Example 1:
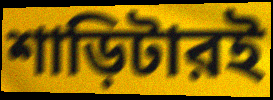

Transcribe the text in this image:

শাড়িটারই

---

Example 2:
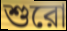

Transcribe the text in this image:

শুরো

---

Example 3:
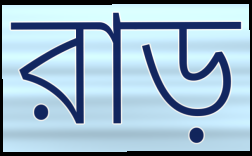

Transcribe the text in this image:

রাড়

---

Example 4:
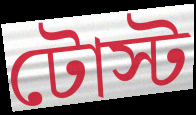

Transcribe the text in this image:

টোস্ট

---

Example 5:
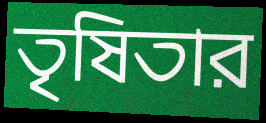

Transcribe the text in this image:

তৃষিতার